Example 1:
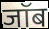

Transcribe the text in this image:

जॉब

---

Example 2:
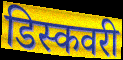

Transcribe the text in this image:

डिस्कवरी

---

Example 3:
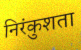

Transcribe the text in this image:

निरंकुशता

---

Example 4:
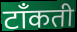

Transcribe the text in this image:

टाँकती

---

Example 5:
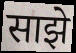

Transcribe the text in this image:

साझे